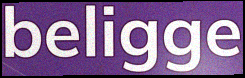
beligge